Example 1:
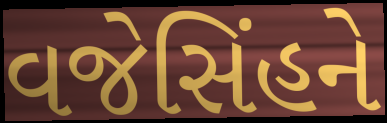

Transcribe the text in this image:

વજેસિંહને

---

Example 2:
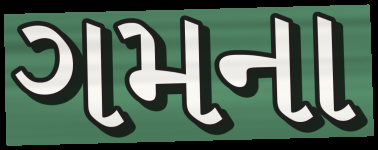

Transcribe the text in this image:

ગમના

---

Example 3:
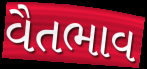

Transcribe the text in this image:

વૈતભાવ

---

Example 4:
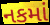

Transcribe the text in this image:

નકમાં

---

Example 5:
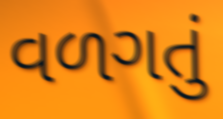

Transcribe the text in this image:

વળગતું